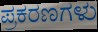
ಪ್ರಕರಣಗಳು